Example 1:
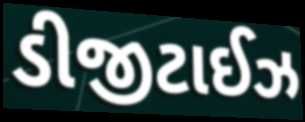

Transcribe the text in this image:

ડીજીટાઈઝ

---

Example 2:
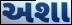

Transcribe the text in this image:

અશા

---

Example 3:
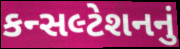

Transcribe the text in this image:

કન્સલ્ટેશનનું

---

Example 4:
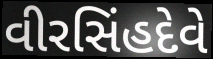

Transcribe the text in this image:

વીરસિંહદેવે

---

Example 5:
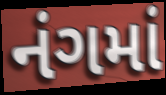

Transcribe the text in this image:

નંગમાં